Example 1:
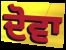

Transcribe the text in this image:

ਦੋਵਾ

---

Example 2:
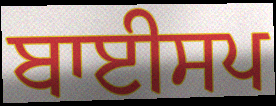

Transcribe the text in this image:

ਬਾਈਸਪ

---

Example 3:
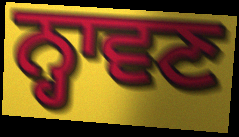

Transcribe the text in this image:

ਨ੍ਹਾਵਣ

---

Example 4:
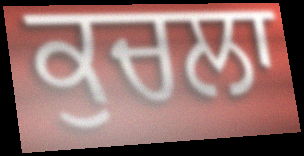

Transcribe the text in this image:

ਕੁਚਲਾ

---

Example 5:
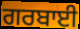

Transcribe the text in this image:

ਗਰਬਾਈ